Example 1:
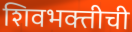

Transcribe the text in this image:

शिवभक्तीची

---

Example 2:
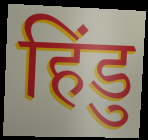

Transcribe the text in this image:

हिंडु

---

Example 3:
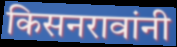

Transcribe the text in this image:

किसनरावांनी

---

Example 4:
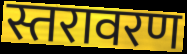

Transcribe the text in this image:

स्तरावरण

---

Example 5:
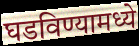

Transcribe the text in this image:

घडविण्यामध्ये